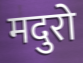
मदुरो